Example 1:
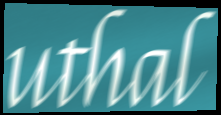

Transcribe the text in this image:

uthal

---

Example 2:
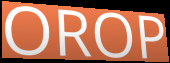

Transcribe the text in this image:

OROP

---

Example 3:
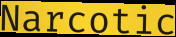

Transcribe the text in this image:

Narcotic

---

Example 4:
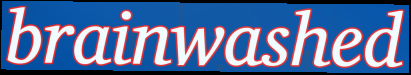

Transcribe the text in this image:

brainwashed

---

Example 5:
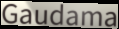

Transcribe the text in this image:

Gaudama